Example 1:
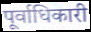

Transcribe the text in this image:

पूर्वाधिकारी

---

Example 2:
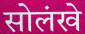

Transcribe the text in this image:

सोलंखे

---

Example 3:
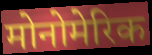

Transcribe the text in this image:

मोनोमेरिक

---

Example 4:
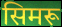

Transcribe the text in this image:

सिमरू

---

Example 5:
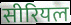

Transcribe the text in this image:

सीरियल